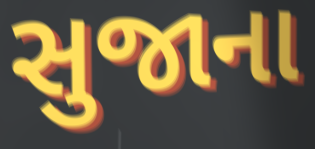
સુજાના